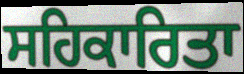
ਸਹਿਕਾਰਿਤਾ